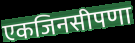
एकजिनसीपणा